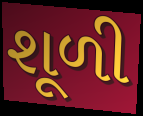
શૂળી